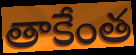
తాకేంత